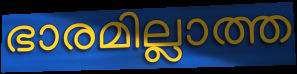
ഭാരമില്ലാത്ത